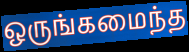
ஒருங்கமைந்த